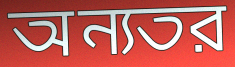
অন্যতর